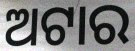
ଅଟାର